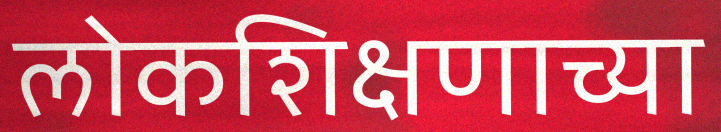
लोकशिक्षणाच्या